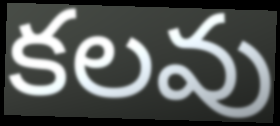
కలవు